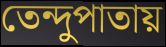
তেন্দুপাতায়